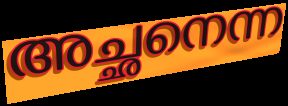
അച്ഛനെന്ന